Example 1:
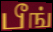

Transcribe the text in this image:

பீங்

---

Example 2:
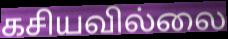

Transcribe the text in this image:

கசியவில்லை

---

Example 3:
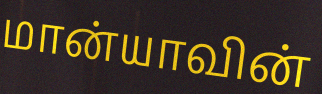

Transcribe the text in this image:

மான்யாவின்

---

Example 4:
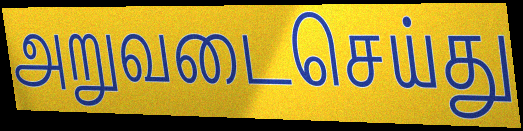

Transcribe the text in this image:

அறுவடைசெய்து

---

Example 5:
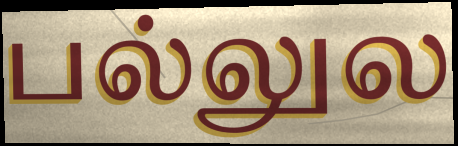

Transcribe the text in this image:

பல்லுல